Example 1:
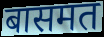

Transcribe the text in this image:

बासमत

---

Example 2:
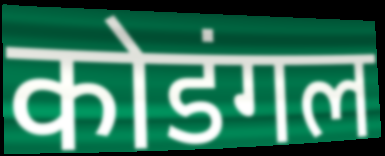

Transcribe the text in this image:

कोडंगल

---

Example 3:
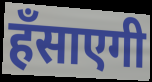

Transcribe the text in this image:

हँसाएगी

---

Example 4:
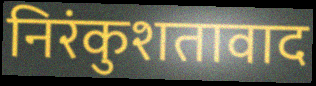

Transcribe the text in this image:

निरंकुशतावाद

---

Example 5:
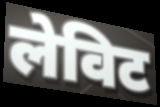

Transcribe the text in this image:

लेविट